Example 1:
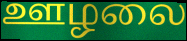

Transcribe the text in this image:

ஊழலை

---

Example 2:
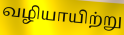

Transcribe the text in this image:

வழியாயிற்று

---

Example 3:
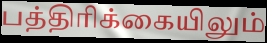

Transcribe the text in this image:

பத்திரிக்கையிலும்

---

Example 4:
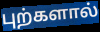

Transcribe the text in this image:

புற்களால்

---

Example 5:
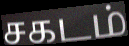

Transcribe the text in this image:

சகடம்